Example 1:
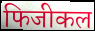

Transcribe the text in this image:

फिजीकल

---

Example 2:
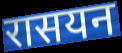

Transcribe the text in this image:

रासयन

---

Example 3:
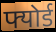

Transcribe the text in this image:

फ्योर्ड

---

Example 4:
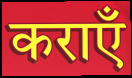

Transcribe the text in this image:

कराएँ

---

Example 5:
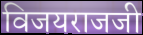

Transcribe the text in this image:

विजयराजजी